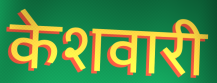
केशवारी